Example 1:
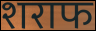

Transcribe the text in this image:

शराफ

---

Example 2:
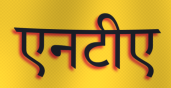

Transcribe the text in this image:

एनटीए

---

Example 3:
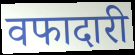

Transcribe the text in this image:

वफादारी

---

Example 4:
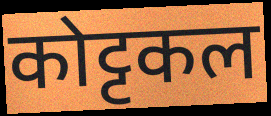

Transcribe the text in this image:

कोट्टकल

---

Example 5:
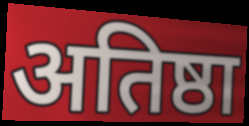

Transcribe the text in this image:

अतिष्ठा